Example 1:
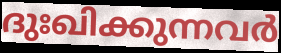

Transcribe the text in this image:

ദുഃഖിക്കുന്നവർ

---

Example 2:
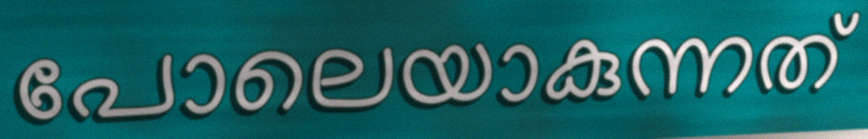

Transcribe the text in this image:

പോലെയാകുന്നത്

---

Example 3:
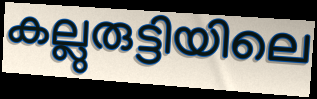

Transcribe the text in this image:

കല്ലുരുട്ടിയിലെ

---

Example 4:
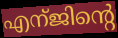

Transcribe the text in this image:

എന്ജിന്റെ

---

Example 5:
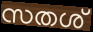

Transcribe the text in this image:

സതശ്